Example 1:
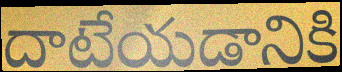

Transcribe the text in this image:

దాటేయడానికి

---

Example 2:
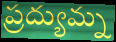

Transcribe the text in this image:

ప్రద్యుమ్న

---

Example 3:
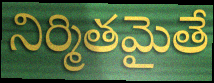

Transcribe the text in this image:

నిర్మితమైతే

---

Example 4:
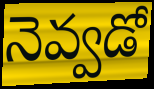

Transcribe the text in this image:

నెవ్వడో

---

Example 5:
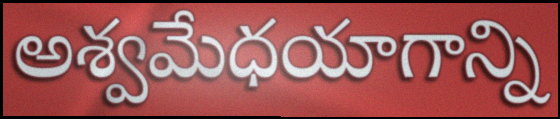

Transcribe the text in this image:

అశ్వమేధయాగాన్ని